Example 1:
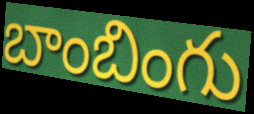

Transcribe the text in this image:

బాంబింగు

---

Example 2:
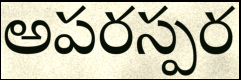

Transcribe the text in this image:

అపరస్పర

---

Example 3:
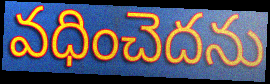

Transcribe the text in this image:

వధించెదను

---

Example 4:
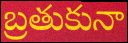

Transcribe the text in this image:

బ్రతుకునా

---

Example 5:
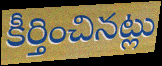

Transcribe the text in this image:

కీర్తించినట్లు